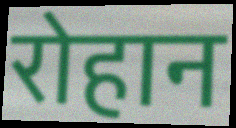
रोहान